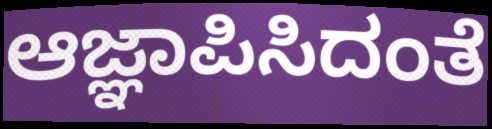
ಆಜ್ಞಾಪಿಸಿದಂತೆ